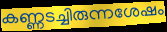
കണ്ണടച്ചിരുന്നശേഷം